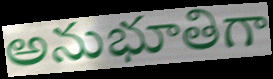
అనుభూతిగా